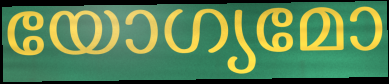
യോഗ്യമോ